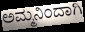
ಅಮ್ಮನಿಂದಾಗಿ